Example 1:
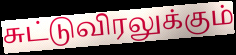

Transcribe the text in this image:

சுட்டுவிரலுக்கும்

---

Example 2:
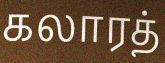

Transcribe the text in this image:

கலாரத்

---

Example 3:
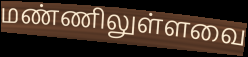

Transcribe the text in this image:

மண்ணிலுள்ளவை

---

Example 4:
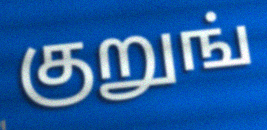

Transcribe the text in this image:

குறுங்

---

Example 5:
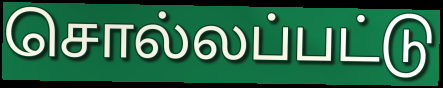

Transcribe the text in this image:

சொல்லப்பட்டு